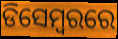
ଡିସେମ୍ବରରେ